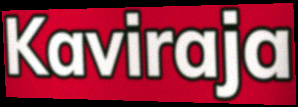
Kaviraja